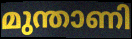
മുന്താണി